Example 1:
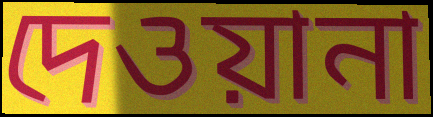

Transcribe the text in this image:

দেওয়ানা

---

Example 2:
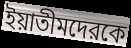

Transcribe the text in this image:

ইয়াতীমদেরকে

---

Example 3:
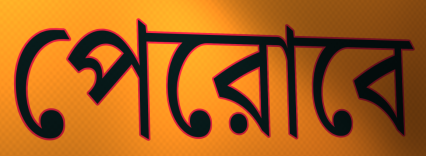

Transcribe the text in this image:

পেরোবে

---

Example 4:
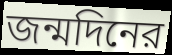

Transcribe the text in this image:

জন্মদিনের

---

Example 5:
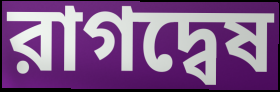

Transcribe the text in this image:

রাগদ্বেষ